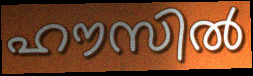
ഹൗസിൽ